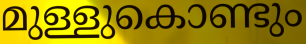
മുള്ളുകൊണ്ടും